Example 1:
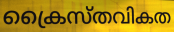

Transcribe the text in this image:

ക്രൈസ്തവികത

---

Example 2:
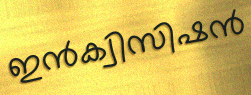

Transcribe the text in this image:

ഇൻക്വിസിഷൻ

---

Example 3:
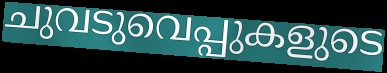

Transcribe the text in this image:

ചുവടുവെപ്പുകളുടെ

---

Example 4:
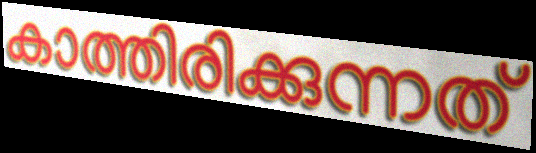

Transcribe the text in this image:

കാത്തിരിക്കുന്നത്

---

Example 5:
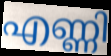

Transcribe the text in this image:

എണ്ണി